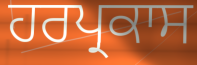
ਹਰਪ੍ਰਕਾਸ